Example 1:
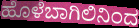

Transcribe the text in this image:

ಹೊಳೆಬಾಗಿಲಿನಿಂದ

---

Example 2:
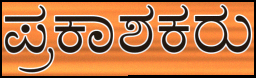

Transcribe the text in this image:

ಪ್ರಕಾಶಕರು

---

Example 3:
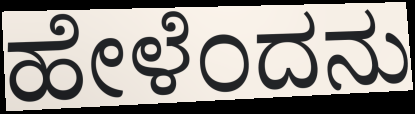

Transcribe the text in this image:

ಹೇಳೆಂದನು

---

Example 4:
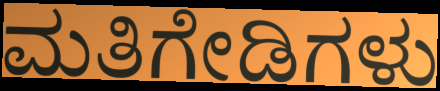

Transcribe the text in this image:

ಮತಿಗೇಡಿಗಳು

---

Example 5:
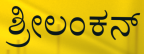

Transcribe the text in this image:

ಶ್ರೀಲಂಕನ್